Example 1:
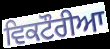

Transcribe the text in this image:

ਵਿਕਟੌਰੀਆ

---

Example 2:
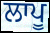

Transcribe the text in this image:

ਲਾਪੂ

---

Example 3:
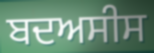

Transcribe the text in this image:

ਬਦਅਸੀਸ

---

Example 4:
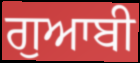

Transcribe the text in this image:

ਗੁਆਬੀ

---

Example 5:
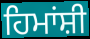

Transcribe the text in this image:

ਹਿਮਾਂਸ਼ੀ